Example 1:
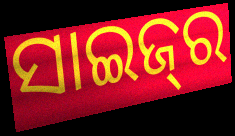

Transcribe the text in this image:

ସାଇଜ୍‌ର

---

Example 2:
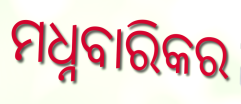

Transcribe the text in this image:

ମଧ୍ନବାରିକର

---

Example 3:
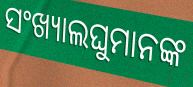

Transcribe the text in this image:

ସଂଖ୍ୟାଲଘୁମାନଙ୍କ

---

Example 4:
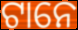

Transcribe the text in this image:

ଟାନେ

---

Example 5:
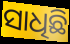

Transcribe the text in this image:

ସାଧିଛି